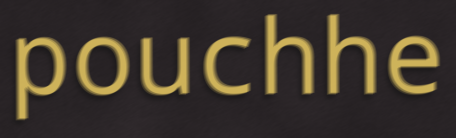
pouchhe